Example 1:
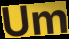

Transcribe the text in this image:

Um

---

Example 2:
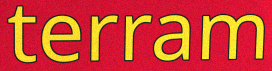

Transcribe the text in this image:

terram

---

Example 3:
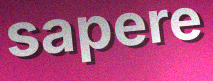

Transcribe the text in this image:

sapere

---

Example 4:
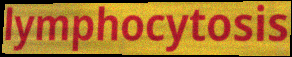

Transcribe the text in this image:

lymphocytosis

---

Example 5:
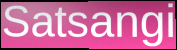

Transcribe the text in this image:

Satsangi